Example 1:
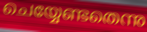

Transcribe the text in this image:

ചെയ്യേണ്ടതെന്നു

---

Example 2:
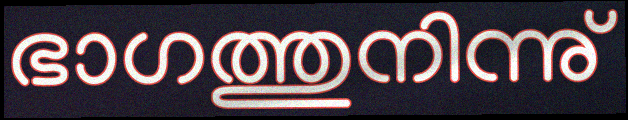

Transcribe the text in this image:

ഭാഗത്തുനിന്നു്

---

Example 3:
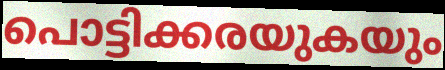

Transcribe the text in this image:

പൊട്ടിക്കരയുകയും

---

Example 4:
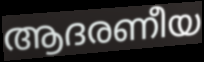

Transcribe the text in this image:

ആദരണീയ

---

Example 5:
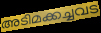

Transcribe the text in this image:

അടിമക്കച്ചവട